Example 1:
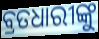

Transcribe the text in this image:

ବ୍ରତଧାରୀଙ୍କୁ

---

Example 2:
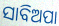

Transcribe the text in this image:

ସାବିଅପା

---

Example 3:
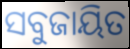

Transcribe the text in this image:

ସବୁଜାୟିତ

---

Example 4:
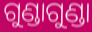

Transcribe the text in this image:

ଗୁଣ୍ଡାଗୁଣ୍ଡା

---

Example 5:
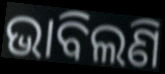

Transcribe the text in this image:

ଭାବିଲଣି